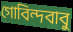
গোবিন্দবাবু